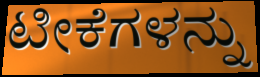
ಟೀಕೆಗಳನ್ನು